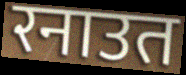
रनाउत